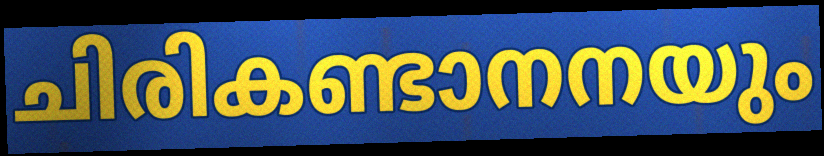
ചിരികണ്ടാനനയും